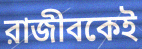
রাজীবকেই